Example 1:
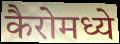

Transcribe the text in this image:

कैरोमध्ये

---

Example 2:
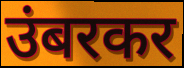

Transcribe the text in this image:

उंबरकर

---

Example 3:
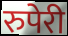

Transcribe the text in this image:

रुपेरी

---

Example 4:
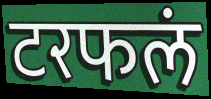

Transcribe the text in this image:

टरफलं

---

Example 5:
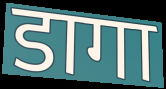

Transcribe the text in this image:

डागा